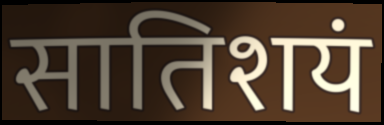
सातिशयं